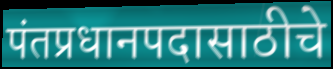
पंतप्रधानपदासाठीचे